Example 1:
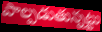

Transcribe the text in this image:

పాల్పడుతున్నట్టు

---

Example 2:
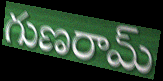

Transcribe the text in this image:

గుణరామ్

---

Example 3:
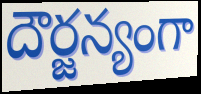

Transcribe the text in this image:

దౌర్జన్యంగా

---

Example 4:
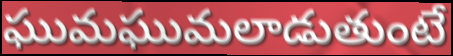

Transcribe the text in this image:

ఘుమఘుమలాడుతుంటే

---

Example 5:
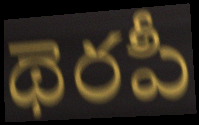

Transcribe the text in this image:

థెరపీ